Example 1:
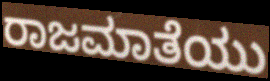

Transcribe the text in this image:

ರಾಜಮಾತೆಯು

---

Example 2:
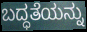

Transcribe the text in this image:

ಬದ್ಧತೆಯನ್ನು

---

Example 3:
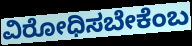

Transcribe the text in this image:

ವಿರೋಧಿಸಬೇಕೆಂಬ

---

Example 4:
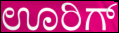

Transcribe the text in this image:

ಊರಿಗ್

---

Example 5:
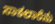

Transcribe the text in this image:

ಸಾಕಲಾರೆನು